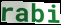
rabi